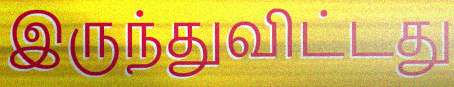
இருந்துவிட்டது